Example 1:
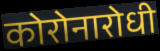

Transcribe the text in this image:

कोरोनारोधी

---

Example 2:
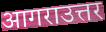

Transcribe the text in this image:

आगराउत्तर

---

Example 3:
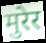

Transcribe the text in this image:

मुरेर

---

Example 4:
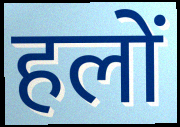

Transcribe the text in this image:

हलों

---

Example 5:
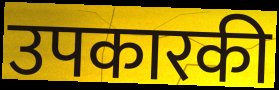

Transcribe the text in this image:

उपकारकी